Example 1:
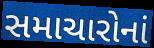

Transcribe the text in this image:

સમાચારોનાં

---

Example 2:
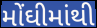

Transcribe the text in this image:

મોંઘીમાંથી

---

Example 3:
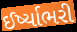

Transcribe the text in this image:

ઈર્ષ્યાભરી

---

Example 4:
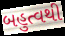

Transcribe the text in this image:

બહુત્વથી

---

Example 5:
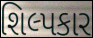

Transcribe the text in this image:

શિલ્પકાર